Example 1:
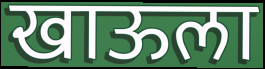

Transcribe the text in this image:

खाऊला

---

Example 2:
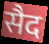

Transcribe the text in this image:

सैद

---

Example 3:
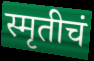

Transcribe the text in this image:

स्मृतीचं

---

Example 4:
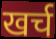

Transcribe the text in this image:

खर्च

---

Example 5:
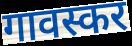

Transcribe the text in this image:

गावस्कर